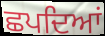
ਛਪਦਿਆਂ